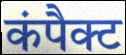
कंपैक्ट